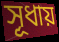
সূধায়